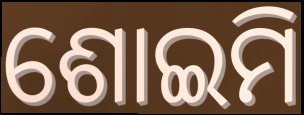
ଶୋଇମି